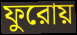
ফুরোয়